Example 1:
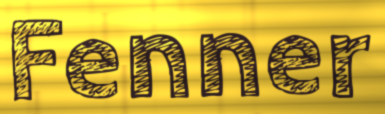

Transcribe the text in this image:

Fenner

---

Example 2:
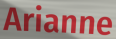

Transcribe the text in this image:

Arianne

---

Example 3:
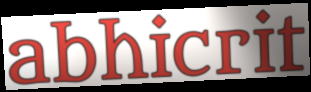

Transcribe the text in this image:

abhicrit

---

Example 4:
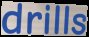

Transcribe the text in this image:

drills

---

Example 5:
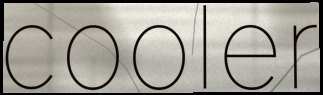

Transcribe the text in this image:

cooler